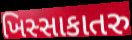
ખિસ્સાકાતરુ